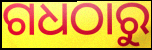
ଗଧଠାରୁ